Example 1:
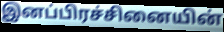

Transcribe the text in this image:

இனப்பிரச்சினையின்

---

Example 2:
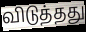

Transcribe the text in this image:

விடுத்தது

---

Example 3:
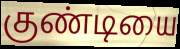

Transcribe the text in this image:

குண்டியை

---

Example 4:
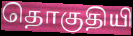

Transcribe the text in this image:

தொகுதியி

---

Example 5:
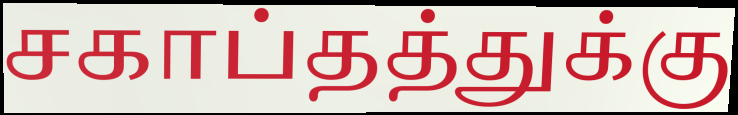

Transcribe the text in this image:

சகாப்தத்துக்கு